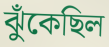
ঝুঁকেছিল